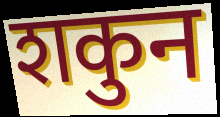
शकुन